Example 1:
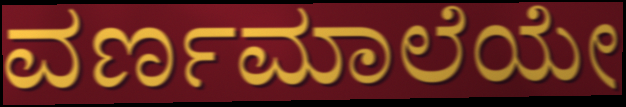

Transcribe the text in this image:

ವರ್ಣಮಾಲೆಯೇ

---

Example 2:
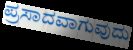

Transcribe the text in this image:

ಪ್ರಸಾದವಾಗುವುದು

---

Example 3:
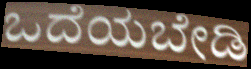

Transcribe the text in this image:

ಒದೆಯಬೇಡಿ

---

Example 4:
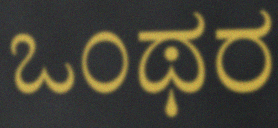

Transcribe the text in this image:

ಒಂಥರ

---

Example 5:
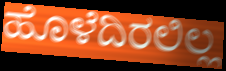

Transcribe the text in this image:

ಹೊಳೆದಿರಲಿಲ್ಲ